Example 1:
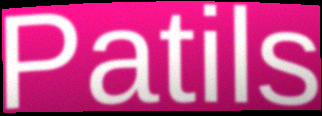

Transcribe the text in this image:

Patils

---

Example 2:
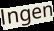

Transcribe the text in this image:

Ingen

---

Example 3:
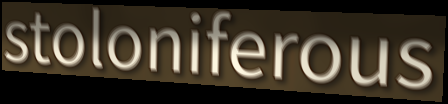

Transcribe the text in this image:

stoloniferous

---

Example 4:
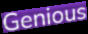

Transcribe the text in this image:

Genious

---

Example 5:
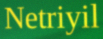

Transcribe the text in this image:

Netriyil